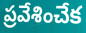
ప్రవేశించేక